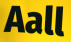
Aall